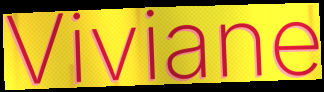
Viviane